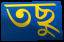
তছু